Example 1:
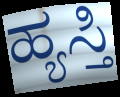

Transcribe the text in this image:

ಹ್ಯಸ್ತಿ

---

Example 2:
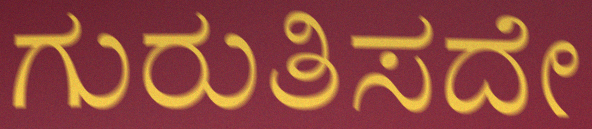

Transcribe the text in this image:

ಗುರುತಿಸದೇ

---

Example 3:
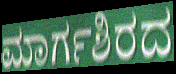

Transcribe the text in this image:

ಮಾರ್ಗಶಿರದ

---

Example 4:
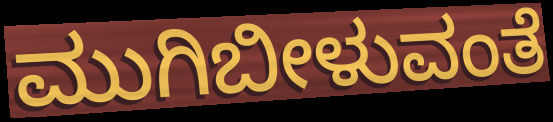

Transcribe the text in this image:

ಮುಗಿಬೀಳುವಂತೆ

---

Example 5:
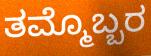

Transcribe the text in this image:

ತಮ್ಮೊಬ್ಬರ